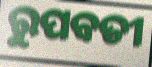
ରୁପବତୀ